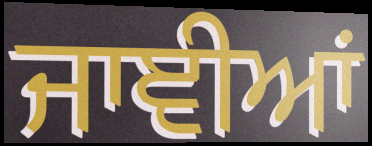
ਜਾਞੀਆਂ